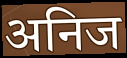
अनिज